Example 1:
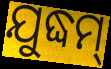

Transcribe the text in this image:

ଯୁଦ୍ଧମ୍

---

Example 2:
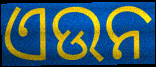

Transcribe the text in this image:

ଏଉନ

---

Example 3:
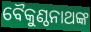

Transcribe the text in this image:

ବୈକୁଣ୍ଠନାଥଙ୍କ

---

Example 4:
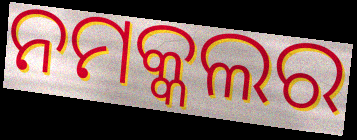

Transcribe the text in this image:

ନମକ୍କଲର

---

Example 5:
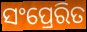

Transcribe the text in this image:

ସଂପ୍ରେରିତ